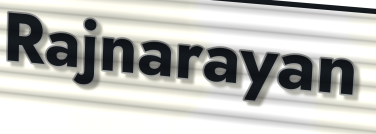
Rajnarayan